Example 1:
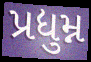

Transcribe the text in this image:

પ્રદ્યુમ્ન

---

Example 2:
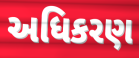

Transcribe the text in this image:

અધિકરણ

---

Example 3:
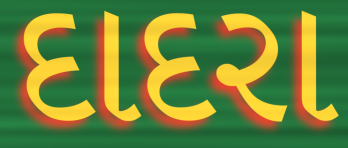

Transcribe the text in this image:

દાદરા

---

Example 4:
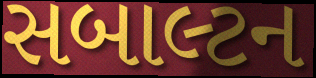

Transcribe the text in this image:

સબાલ્ટન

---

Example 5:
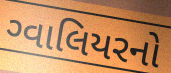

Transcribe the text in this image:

ગ્વાલિયરનો